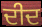
ਦੀਦ